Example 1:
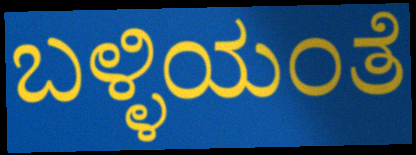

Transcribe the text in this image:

ಬಳ್ಳಿಯಂತೆ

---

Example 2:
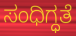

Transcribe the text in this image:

ಸಂಧಿಗ್ಧತೆ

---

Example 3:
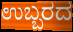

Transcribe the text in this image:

ಉಬ್ಬರದ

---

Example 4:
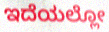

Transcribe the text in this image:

ಇದೆಯಲ್ಲೋ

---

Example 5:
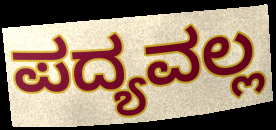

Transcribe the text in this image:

ಪದ್ಯವಲ್ಲ